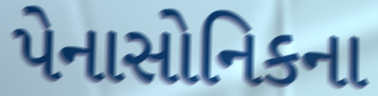
પેનાસોનિકના